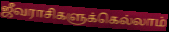
ஜீவராசிகளுக்கெல்லாம்